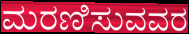
ಮರಣಿಸುವವರ